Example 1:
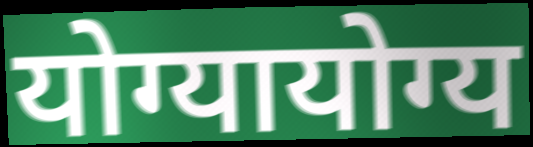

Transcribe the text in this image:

योग्यायोग्य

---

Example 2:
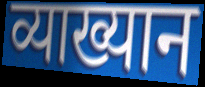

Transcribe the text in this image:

व्याख्यान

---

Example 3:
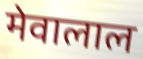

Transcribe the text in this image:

मेवालाल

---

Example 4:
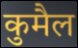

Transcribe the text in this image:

कुमैल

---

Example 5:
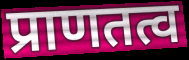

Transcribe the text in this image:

प्राणतत्व